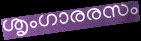
ശൃംഗാരരസം